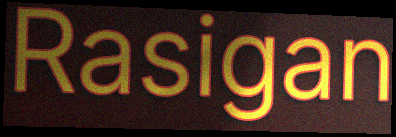
Rasigan